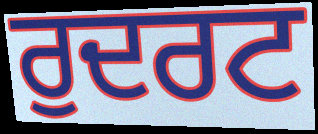
ਰੁਦਰਟ